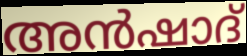
അൻഷാദ്